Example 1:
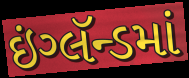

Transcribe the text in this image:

ઇંગ્લૅન્ડમાં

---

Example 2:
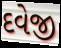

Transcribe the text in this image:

દવેજી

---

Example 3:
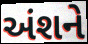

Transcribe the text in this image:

અંશને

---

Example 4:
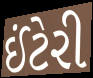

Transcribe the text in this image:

ઈંટેરી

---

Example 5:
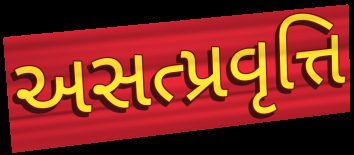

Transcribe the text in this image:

અસત્પ્રવૃત્તિ